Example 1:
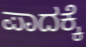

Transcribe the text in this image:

ಪಾದಕ್ಕೆ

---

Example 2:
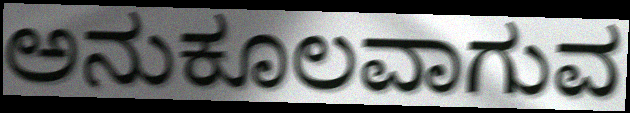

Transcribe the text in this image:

ಅನುಕೂಲವಾಗುವ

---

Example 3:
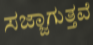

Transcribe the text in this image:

ಸಜ್ಜಾಗುತ್ತವೆ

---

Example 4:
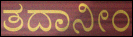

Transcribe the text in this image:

ತದಾನೀಂ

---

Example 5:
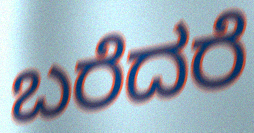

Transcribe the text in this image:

ಬರೆದರೆ